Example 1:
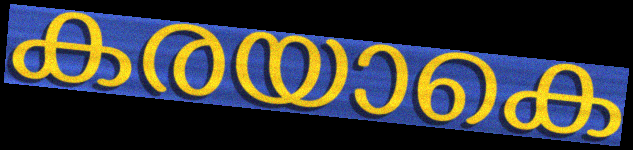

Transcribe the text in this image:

കരയാകെ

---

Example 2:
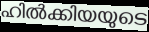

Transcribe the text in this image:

ഹിൽക്കിയയുടെ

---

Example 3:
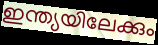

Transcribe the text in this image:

ഇന്ത്യയിലേക്കും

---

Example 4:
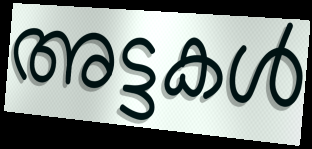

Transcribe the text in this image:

അട്ടകൾ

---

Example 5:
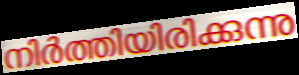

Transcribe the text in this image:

നിർത്തിയിരിക്കുന്നു